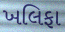
ખલિફા